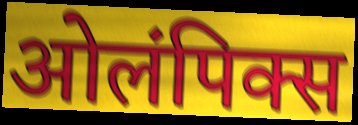
ओलंपिक्स